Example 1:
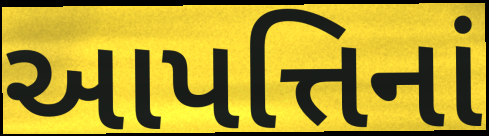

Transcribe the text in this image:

આપત્તિનાં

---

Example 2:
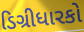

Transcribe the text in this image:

ડિગ્રીધારકો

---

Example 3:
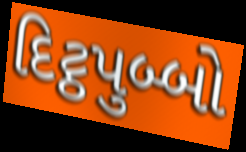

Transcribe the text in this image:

દિટ્ઠપુબ્બો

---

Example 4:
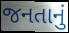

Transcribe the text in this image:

જનતાનું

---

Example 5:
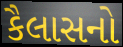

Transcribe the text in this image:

કૈલાસનો